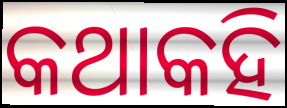
କଥାକହି